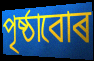
পৃষ্ঠাবোৰ